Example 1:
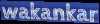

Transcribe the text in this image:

wakankar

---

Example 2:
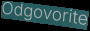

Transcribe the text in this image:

Odgovorite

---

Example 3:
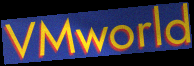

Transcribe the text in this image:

VMworld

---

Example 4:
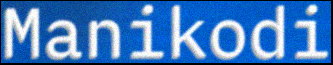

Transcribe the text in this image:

Manikodi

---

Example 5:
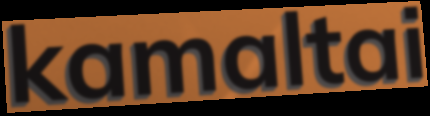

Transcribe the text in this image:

kamaltai